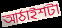
আঠাইশটা